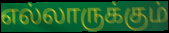
எல்லாருக்கும்